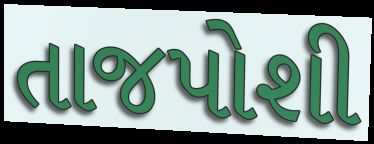
તાજપોશી